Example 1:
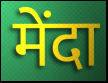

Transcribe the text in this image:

मेंदा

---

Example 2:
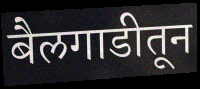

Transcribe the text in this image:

बैलगाडीतून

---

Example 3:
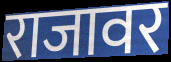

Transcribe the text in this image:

राजावर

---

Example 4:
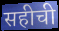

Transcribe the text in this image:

सहीची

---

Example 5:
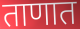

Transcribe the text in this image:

ताणात